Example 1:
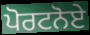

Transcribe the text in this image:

ਪੋਰਟਨੋਏ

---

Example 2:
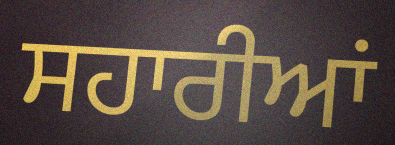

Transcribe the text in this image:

ਸਹਾਰੀਆਂ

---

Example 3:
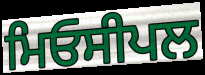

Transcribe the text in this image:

ਮਿਓਸੀਪਲ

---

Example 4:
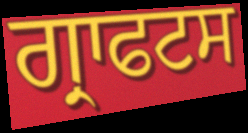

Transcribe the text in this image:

ਗ੍ਰਾਫਟਸ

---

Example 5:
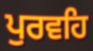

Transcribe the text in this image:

ਪੁਰਵਹਿ